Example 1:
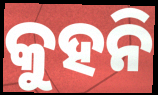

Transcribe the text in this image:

କୁହନି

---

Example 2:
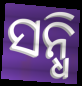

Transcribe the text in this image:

ସନ୍ଧି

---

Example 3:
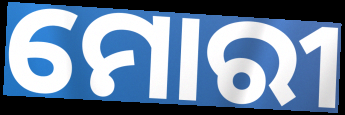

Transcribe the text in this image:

ମୋରୀ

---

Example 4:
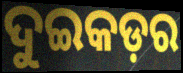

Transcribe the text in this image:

ଦୁଇକଡ଼ର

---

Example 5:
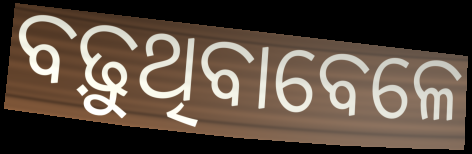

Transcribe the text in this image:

ବଢ଼ୁଥିବାବେଳେ